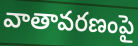
వాతావరణంపై